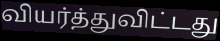
வியர்த்துவிட்டது